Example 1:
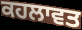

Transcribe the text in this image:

ਕਹਲਾਵਤ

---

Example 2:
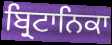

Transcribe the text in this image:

ਬ੍ਰਿਟਾਨਿਕਾ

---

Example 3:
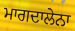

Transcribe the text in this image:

ਮਾਗਦਾਲੇਨਾ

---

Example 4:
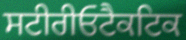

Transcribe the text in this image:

ਸਟੀਰੀਓਟੈਕਟਿਕ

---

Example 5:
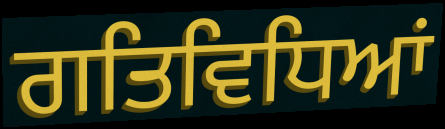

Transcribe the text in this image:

ਗਤਿਵਿਧਿਆਂ